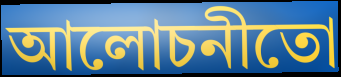
আলোচনীতো